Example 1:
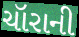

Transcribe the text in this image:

ચૉરાની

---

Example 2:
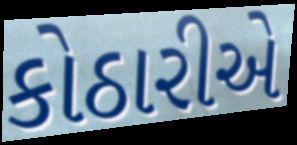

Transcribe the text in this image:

કોઠારીએ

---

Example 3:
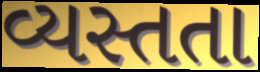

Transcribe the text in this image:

વ્યસ્તતા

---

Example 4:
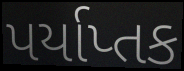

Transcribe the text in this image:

પર્યાપ્તક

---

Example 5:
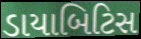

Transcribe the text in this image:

ડાયાબિટિસ